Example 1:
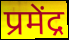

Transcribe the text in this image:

प्रमेंद्र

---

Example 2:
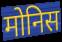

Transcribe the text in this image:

मोनिस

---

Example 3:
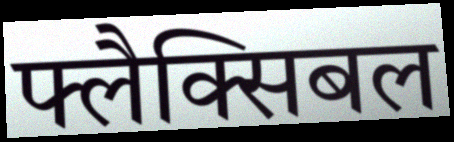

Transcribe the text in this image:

फ्लैक्सिबल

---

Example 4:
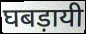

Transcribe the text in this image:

घबड़ायी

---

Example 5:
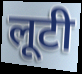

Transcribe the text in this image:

लूटी